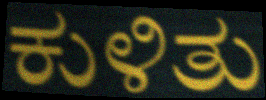
ಕುಳಿತು